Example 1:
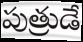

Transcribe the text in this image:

పుత్రుడే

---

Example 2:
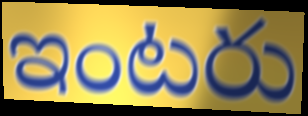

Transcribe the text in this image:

ఇంటరు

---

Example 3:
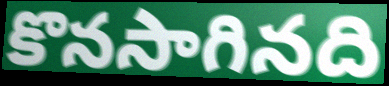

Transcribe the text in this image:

కొనసాగినది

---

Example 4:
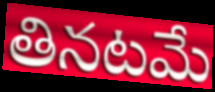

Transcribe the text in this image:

తినటమే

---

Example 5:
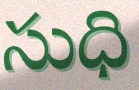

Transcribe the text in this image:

సుధి